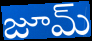
జూమ్